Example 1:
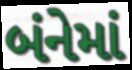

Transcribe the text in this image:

બંનેમાં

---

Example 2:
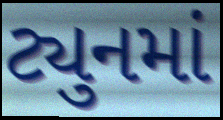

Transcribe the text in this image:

ટ્યુનમાં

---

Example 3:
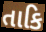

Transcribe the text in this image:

તાકિ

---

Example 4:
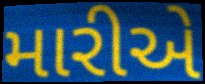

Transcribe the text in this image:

મારીએ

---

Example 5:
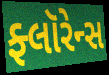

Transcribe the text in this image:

ફ્લૉરેન્સ